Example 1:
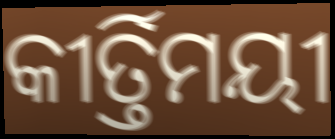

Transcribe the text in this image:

କୀର୍ତ୍ତିମୟୀ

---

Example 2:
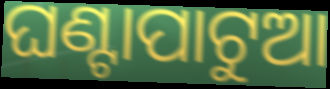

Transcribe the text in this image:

ଘଣ୍ଟାପାଟୁଆ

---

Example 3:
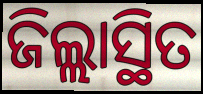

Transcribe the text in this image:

ଜିଲ୍ଲାସ୍ଥିତ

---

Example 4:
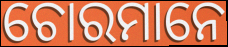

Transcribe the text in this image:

ଚୋରମାନେ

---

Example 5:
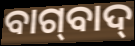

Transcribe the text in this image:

ବାଗ୍‌ବାଦ୍